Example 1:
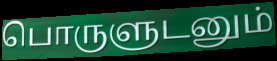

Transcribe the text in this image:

பொருளுடனும்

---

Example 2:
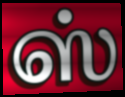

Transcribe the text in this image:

ஸ்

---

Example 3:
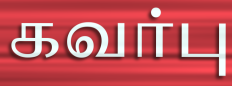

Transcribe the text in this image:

கவர்பு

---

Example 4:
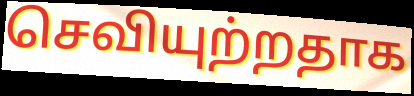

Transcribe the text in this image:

செவியுற்றதாக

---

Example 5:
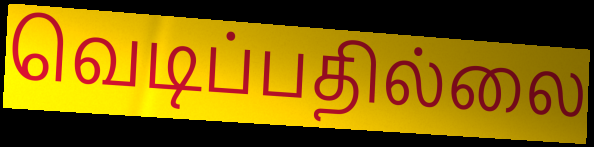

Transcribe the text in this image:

வெடிப்பதில்லை